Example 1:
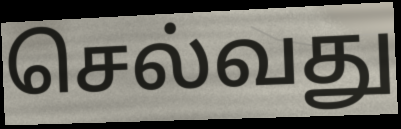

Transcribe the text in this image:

செல்வது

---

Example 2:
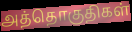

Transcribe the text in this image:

அத்தொகுதிகள்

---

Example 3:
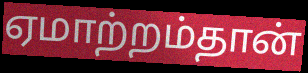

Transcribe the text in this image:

ஏமாற்றம்தான்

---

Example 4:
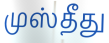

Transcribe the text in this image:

முஸ்தீது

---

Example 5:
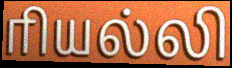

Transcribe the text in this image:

ரியல்லி